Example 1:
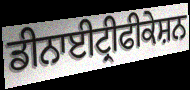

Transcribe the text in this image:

ਡੀਨਾਈਟ੍ਰੀਫੀਕੇਸ਼ਨ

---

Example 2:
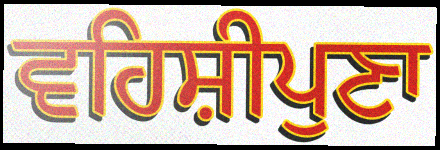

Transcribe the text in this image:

ਵਹਿਸ਼ੀਪੁਣਾ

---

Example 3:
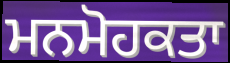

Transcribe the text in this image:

ਮਨਮੋਹਕਤਾ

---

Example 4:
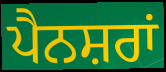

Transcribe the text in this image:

ਪੈਨਸ਼ਰਾਂ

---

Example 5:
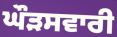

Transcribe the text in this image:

ਘੌੜਸਵਾਰੀ